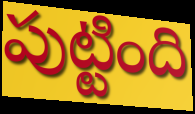
పుట్టింది